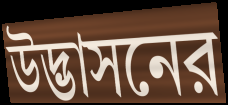
উদ্ভাসনের